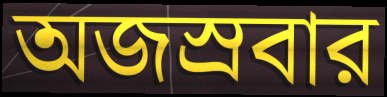
অজস্রবার